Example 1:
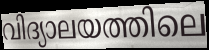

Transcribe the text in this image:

വിദ്യാലയത്തിലെ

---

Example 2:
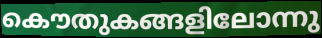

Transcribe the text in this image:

കൌതുകങ്ങളിലോന്നു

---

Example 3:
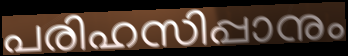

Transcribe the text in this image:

പരിഹസിപ്പാനും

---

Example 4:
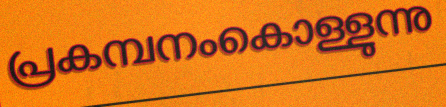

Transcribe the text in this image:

പ്രകമ്പനംകൊള്ളുന്നു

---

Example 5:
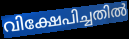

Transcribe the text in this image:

വിക്ഷേപിച്ചതിൽ